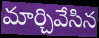
మార్చివేసిన